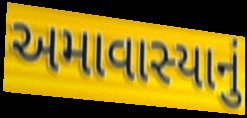
અમાવાસ્યાનું